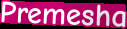
Premesha